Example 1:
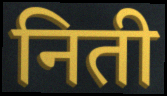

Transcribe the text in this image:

निती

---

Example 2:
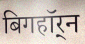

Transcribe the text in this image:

बिगहॉर्न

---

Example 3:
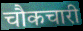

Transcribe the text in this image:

चौकचारी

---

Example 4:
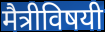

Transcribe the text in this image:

मैत्रीविषयी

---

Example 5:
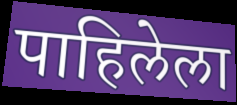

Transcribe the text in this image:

पाहिलेला